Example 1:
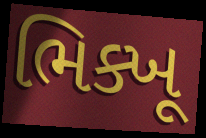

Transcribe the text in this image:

ભિક્ખૂ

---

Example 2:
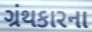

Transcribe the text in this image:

ગ્રંથકારના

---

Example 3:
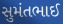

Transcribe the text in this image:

સુમંતભાઈ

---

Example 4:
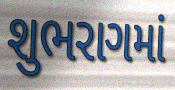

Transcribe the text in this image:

શુભરાગમાં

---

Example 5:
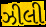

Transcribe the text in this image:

ઝીલી